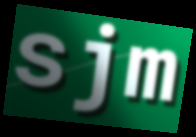
sjm